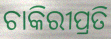
ଚାକିରୀପ୍ରତି